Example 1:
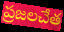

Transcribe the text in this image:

ప్రజలచేత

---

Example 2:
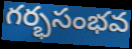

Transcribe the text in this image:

గర్భసంభవ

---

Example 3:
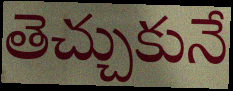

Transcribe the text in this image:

తెచ్చుకునే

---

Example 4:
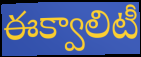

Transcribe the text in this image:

ఈక్వాలిటీ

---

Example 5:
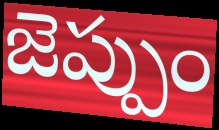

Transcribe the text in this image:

జెప్పుం